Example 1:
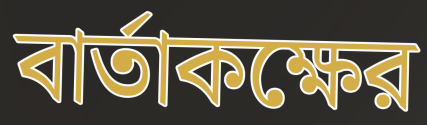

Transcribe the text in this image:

বার্তাকক্ষের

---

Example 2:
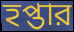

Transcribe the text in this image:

হপ্তার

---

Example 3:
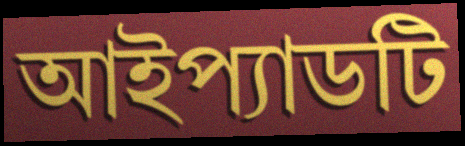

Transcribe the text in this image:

আইপ্যাডটি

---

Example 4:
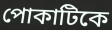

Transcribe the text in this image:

পোকাটিকে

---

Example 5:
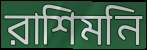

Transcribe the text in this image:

রাশিমনি